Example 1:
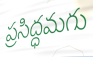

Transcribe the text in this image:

ప్రసిద్ధమగు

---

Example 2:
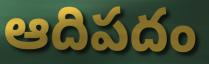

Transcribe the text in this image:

ఆదిపదం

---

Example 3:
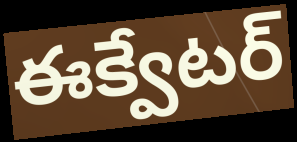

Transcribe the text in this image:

ఈక్వేటర్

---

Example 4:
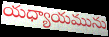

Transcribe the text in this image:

యధ్యాయమును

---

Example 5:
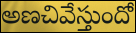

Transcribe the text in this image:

అణచివేస్తుందో